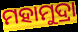
ମହାମୁଦ୍ରା